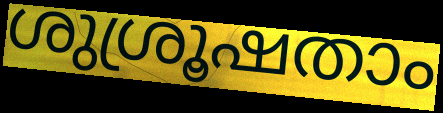
ശുശ്രൂഷതാം